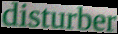
disturber